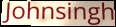
Johnsingh